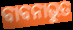
ବାବନାଭୁତ